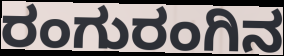
ರಂಗುರಂಗಿನ